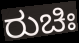
ರುಚಿಃ